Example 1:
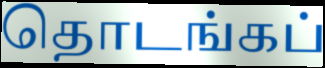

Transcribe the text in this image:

தொடங்கப்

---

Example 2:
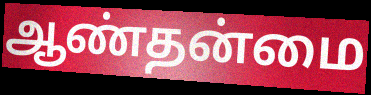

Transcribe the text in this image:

ஆண்தன்மை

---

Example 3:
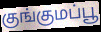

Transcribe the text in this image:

குங்குமப்பூ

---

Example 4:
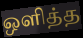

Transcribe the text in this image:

ஒளித்த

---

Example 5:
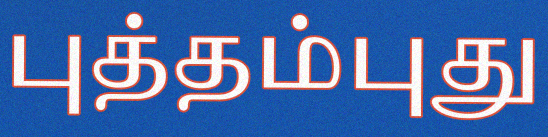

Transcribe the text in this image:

புத்தம்புது